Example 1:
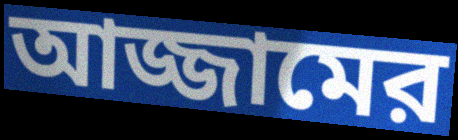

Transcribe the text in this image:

আজ্জামের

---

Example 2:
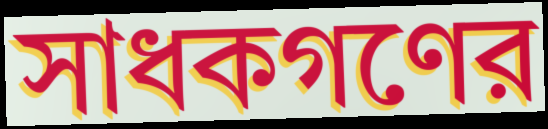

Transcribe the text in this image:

সাধকগণের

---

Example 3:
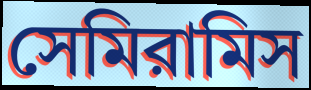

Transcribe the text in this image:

সেমিরামিস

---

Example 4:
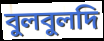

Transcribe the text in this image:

বুলবুলদি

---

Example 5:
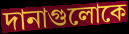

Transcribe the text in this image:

দানাগুলোকে